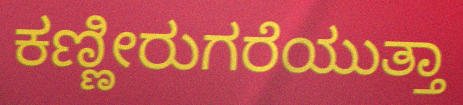
ಕಣ್ಣೀರುಗರೆಯುತ್ತಾ